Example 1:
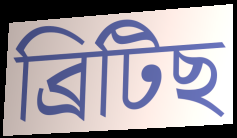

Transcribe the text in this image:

ব্ৰিটিছ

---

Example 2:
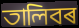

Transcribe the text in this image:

তালিবৰ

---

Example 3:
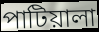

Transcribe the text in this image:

পাটিয়ালা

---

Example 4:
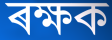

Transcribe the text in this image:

ৰক্ষক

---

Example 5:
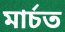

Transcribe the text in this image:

মাৰ্চত